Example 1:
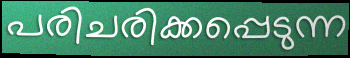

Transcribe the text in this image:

പരിചരിക്കപ്പെടുന്ന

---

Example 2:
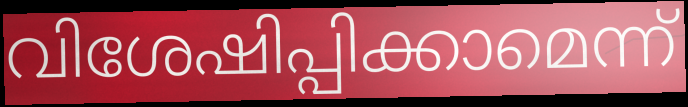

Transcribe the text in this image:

വിശേഷിപ്പിക്കാമെന്ന്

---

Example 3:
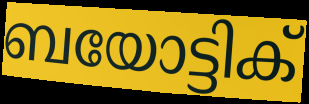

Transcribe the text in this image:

ബയോട്ടിക്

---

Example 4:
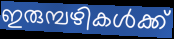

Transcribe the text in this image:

ഇരുമ്പഴികൾക്ക്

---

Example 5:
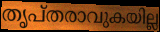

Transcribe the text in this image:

തൃപ്തരാവുകയില്ല